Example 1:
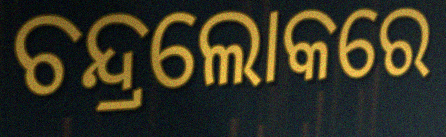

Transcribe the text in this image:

ଚନ୍ଦ୍ରଲୋକରେ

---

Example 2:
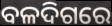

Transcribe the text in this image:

ବଳଦିଗରେ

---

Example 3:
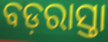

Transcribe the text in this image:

ବଡ଼ରାସ୍ତା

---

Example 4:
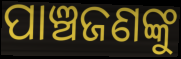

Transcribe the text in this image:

ପାଞ୍ଚଜଣଙ୍କୁ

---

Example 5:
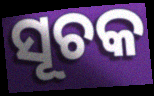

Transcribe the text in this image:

ସୂଚକ